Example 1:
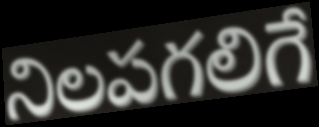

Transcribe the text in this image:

నిలపగలిగే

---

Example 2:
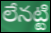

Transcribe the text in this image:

లేనట్టి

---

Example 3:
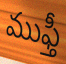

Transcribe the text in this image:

ముఫ్తీ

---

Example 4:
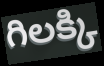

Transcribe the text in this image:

గిలక్కి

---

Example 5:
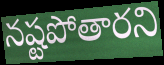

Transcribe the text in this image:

నష్టపోతారని